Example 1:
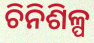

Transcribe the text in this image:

ଚିନିଶିଳ୍ପ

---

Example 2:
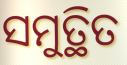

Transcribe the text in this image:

ସମୁତ୍ଥିତ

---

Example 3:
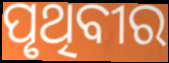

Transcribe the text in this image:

ପୃଥିବୀର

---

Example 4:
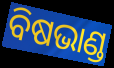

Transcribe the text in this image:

ବିଷଭାଣ୍ଡ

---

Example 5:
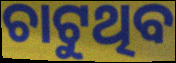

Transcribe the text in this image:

ଚାଟୁଥିବ